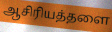
ஆசிரியத்தளை